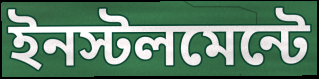
ইনস্টলমেন্টে